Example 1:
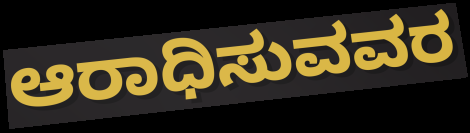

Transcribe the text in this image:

ಆರಾಧಿಸುವವರ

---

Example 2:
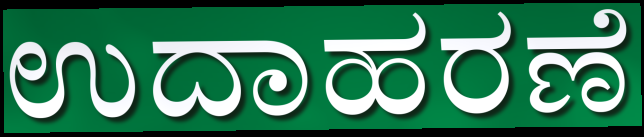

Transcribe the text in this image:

ಉದಾಹರಣೆ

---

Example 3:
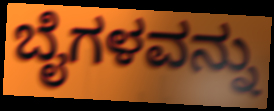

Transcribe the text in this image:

ಬೈಗಳವನ್ನು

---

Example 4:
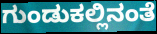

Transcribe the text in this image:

ಗುಂಡುಕಲ್ಲಿನಂತೆ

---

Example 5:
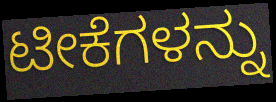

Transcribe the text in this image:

ಟೀಕೆಗಳನ್ನು